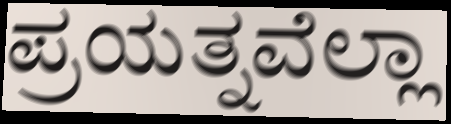
ಪ್ರಯತ್ನವೆಲ್ಲಾ